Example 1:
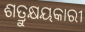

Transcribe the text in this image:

ଶତ୍ରୁକ୍ଷୟକାରୀ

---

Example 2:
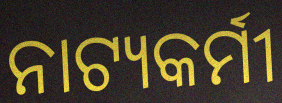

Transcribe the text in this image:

ନାଟ୍ୟକର୍ମୀ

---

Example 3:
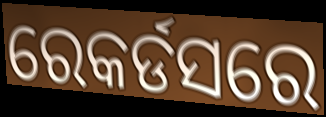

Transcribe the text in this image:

ରେକର୍ଡସରେ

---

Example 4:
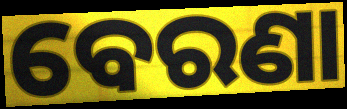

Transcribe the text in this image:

ବେରଣା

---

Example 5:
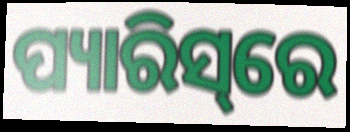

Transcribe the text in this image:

ପ୍ୟାରିସ୍‌ରେ